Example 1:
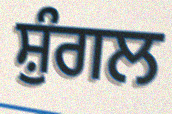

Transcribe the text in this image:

ਸ਼ੁੰਗਲ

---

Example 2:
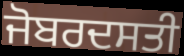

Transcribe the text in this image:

ਜੋਬਰਦਸਤੀ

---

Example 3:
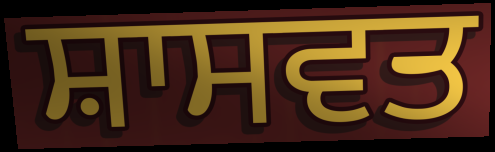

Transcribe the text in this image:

ਸ਼ਾਸਵਤ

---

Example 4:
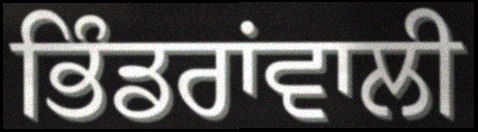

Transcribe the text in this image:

ਭਿੰਡਰਾਂਵਾਲੀ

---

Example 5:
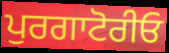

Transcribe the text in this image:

ਪੁਰਗਾਟੋਰੀਓ